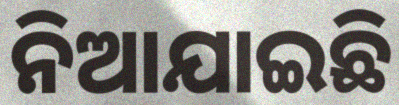
ନିଆଯାଇଛି